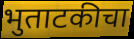
भुताटकीचा